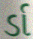
ર્ડા